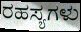
ರಹಸ್ಯಗಳು